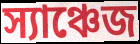
স্যাঞ্চেজ